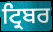
ਟ੍ਰਿਬਰ